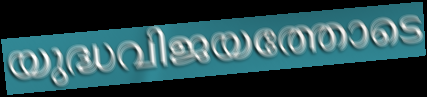
യുദ്ധവിജയത്തോടെ